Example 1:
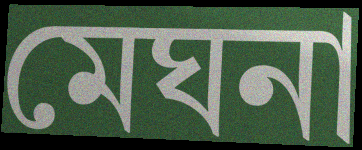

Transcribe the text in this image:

মেঘনা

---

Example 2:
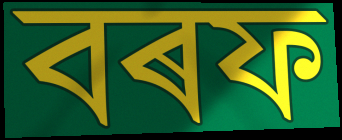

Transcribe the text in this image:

বৰফ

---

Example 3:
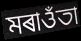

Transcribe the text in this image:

মৰাওঁতা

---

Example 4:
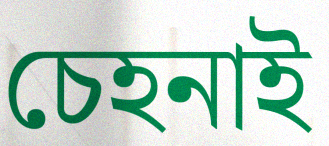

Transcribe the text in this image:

চেহনাই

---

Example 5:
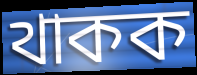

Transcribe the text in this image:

থাকক